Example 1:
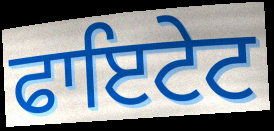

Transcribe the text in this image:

ਫਾਇਟੇਟ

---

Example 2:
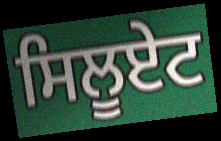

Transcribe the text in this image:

ਸਿਲੂਏਟ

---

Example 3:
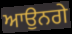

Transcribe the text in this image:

ਆਉਨਗੇ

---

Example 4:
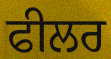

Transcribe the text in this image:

ਫੀਲਰ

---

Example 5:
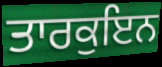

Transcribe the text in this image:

ਤਾਰਕੁਇਨ